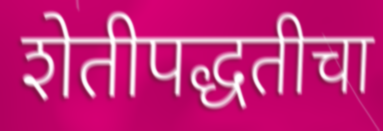
शेतीपद्धतीचा